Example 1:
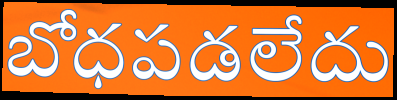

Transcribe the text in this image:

బోధపడలేదు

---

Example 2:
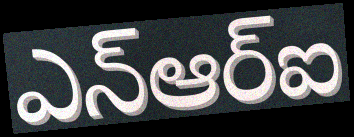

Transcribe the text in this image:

ఎన్ఆర్ఐ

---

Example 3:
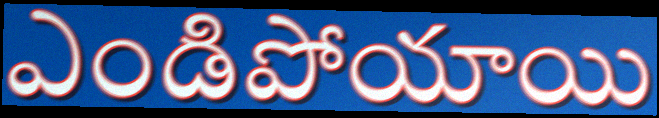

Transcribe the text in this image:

ఎండిపోయాయి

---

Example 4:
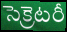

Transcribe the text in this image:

సెక్రెటరీ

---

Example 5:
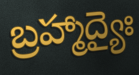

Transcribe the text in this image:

బ్రహ్మాద్యైః